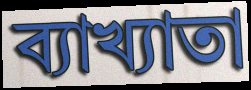
ব্যাখ্যাতা